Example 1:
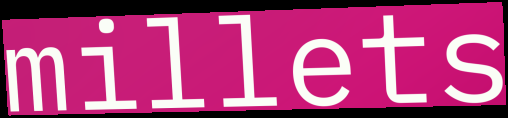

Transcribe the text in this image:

millets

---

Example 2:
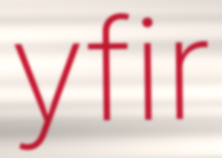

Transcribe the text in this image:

yfir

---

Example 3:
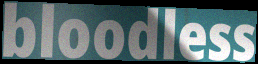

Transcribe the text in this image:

bloodless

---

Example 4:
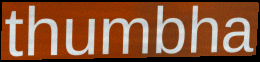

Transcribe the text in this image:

thumbha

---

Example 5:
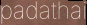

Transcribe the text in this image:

padathai